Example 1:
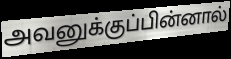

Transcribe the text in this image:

அவனுக்குப்பின்னால்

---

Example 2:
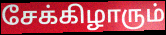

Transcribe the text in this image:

சேக்கிழாரும்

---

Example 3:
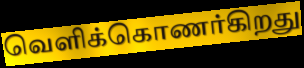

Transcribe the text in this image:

வெளிக்கொணர்கிறது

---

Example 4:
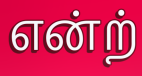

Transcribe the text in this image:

என்ற்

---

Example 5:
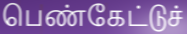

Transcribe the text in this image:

பெண்கேட்டுச்